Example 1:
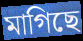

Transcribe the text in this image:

মাগিছে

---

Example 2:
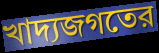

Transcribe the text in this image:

খাদ্যজগতের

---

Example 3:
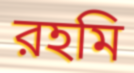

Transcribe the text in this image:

রহমি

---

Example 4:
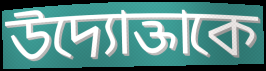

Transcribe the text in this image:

উদ্যোক্তাকে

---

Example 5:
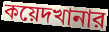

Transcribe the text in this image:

কয়েদখানার